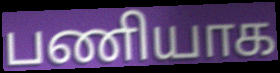
பணியாக